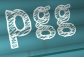
pgg